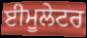
ਈਮੂਲੇਟਰ